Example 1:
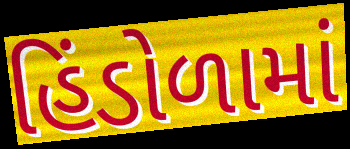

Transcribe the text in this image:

હિંડોળામાં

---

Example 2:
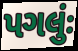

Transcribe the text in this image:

પગલુંઃ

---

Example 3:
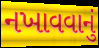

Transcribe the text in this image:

નખાવવાનું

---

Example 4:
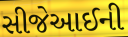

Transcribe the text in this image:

સીજેઆઈની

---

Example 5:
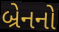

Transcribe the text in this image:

બ્રેનનો